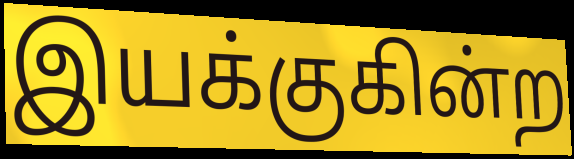
இயக்குகின்ற